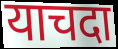
याचदा